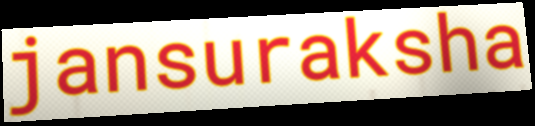
jansuraksha